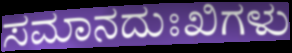
ಸಮಾನದುಃಖಿಗಳು